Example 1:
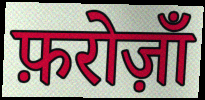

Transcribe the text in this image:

फ़रोज़ाँ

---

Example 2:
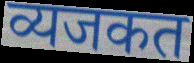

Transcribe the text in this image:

व्यजकत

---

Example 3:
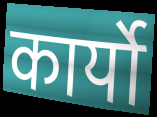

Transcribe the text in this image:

कार्यो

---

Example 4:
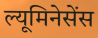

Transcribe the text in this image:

ल्यूमिनेसेंस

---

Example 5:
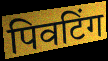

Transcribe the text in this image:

पिवटिंग